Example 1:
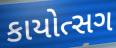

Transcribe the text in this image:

કાયોત્સગ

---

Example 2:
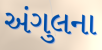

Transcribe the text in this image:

અંગુલના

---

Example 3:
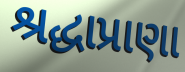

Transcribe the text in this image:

શ્રદ્ધાપ્રાણા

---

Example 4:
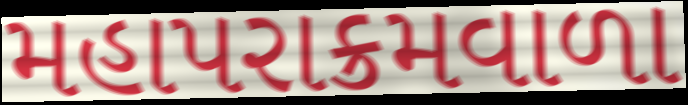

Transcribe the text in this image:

મહાપરાક્રમવાળા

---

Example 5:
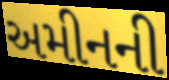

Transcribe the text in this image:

અમીનની